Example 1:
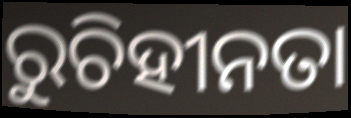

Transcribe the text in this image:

ରୁଚିହୀନତା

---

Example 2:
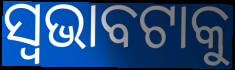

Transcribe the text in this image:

ସ୍ଵଭାବଟାକୁ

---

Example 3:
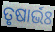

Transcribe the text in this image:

ତୃଷାର୍ଭଃ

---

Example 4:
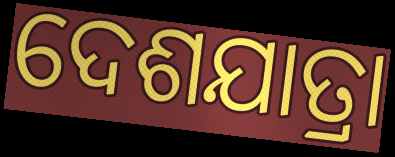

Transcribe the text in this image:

ଦେଶଯାତ୍ରା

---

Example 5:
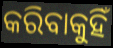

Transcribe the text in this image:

କରିବାକୁହିଁ